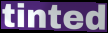
tinted